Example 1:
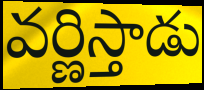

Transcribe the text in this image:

వర్ణిస్తాడు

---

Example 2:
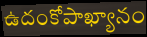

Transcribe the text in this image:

ఉదంకోపాఖ్యానం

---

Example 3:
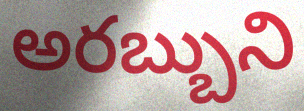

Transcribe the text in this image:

అరబ్బుని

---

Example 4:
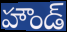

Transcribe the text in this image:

హౌండ్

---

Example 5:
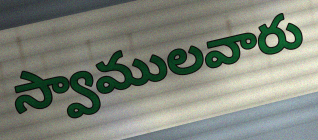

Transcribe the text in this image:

స్వాములవారు